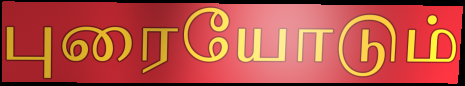
புரையோடும்